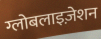
ग्लोबलाइज़ेशन